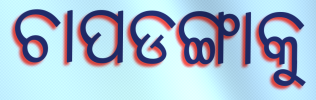
ଚାପଡଙ୍ଗାକୁ